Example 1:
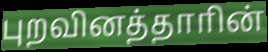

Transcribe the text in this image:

புறவினத்தாரின்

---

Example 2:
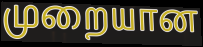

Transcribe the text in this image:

முறையான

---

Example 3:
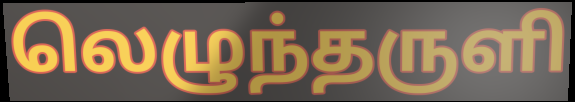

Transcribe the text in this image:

லெழுந்தருளி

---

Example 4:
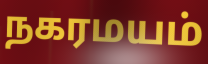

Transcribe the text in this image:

நகரமயம்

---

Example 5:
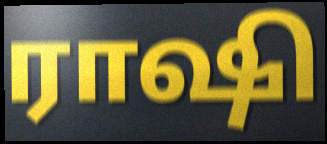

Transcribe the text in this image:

ராஷி